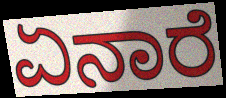
ಏನಾರೆ